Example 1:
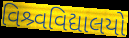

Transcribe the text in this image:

વિશ્ર્વવિદ્યાલયો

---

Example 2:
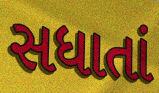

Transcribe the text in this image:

સધાતાં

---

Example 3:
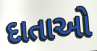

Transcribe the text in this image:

દાતાઓ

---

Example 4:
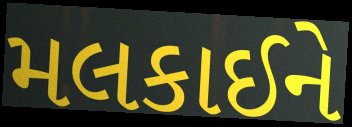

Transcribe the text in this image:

મલકાઈને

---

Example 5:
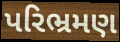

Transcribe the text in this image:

પરિભ્રમણ